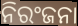
ନିରଂଜନା